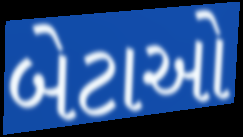
બેટાઓ